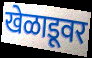
खेळाडूवर